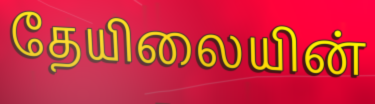
தேயிலையின்